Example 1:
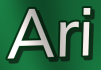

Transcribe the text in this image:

Ari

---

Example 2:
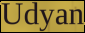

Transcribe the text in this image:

Udyan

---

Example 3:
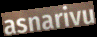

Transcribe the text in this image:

asnarivu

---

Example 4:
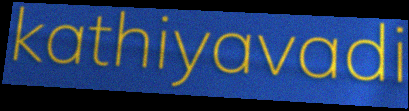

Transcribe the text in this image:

kathiyavadi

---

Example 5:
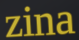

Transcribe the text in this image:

zina